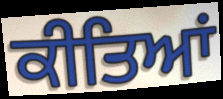
ਕੀਤਿਆਂ